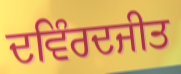
ਦਵਿੰਰਦਜੀਤ